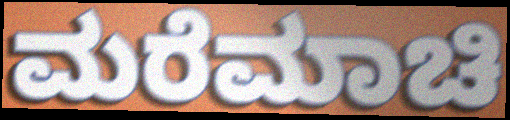
ಮರೆಮಾಚಿ